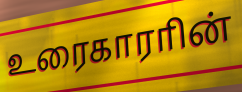
உரைகாரரின்